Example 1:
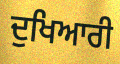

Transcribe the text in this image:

ਦੁਖਿਆਰੀ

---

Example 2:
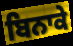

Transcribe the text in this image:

ਬਿਨਾਕੇ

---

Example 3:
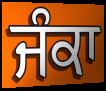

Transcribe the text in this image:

ਜੰਕਾ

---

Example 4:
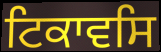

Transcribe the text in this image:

ਟਿਕਾਵਸਿ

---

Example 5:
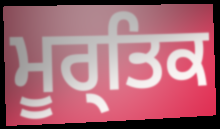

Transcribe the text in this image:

ਮੂਰ੍ਤਿਕ